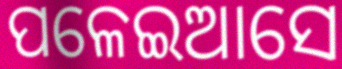
ପଳେଇଆସେ